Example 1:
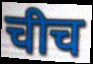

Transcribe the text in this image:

चीच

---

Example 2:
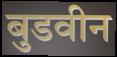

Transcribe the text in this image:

बुडवीन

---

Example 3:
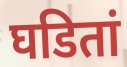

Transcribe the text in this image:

घडितां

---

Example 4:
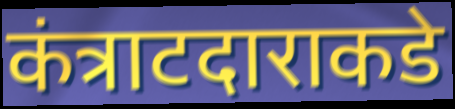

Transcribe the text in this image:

कंत्राटदाराकडे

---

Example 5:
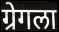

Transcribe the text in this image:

ग्रेगला